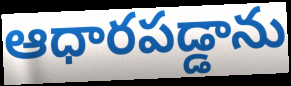
ఆధారపడ్డాను